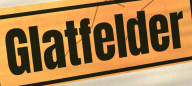
Glatfelder